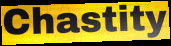
Chastity